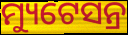
ମ୍ୟୁଟେସନ୍ର